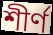
শীর্ণ